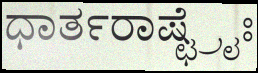
ಧಾರ್ತರಾಷ್ಟ್ರೈಃ